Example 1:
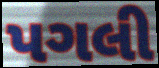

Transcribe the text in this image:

પગલી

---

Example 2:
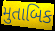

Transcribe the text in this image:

મુતાબિક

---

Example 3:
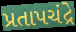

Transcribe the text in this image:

પ્રતાપચંદ્રે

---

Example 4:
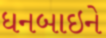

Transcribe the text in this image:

ધનબાઇને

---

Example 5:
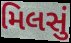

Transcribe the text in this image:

મિલસું